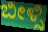
ಬೀಳ್ಸಿ